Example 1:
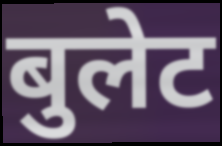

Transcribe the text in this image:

बुलेट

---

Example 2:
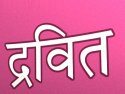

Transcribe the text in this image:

द्रवित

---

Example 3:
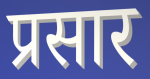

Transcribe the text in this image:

प्रसार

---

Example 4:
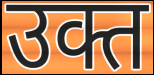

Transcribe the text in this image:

उक्त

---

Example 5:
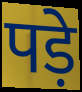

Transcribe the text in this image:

पड़े